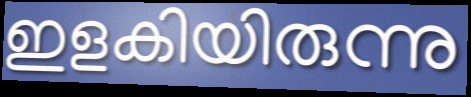
ഇളകിയിരുന്നു